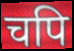
चपि